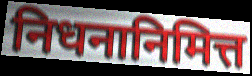
निधनानिमित्त